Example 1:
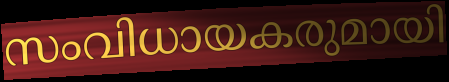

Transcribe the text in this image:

സംവിധായകരുമായി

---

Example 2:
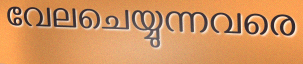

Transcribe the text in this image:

വേലചെയ്യുന്നവരെ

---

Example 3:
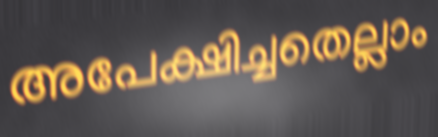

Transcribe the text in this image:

അപേക്ഷിച്ചതെല്ലാം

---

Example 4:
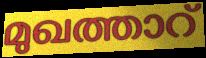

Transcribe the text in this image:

മുഖത്താറ്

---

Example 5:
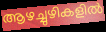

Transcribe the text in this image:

ആഴച്ചുഴികളിൽ